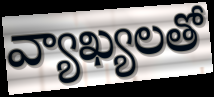
వ్యాఖ్యలతో